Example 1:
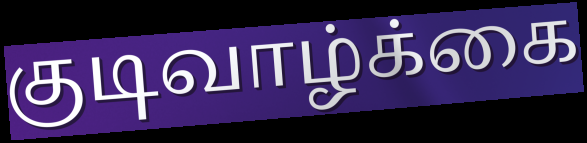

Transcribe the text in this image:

குடிவாழ்க்கை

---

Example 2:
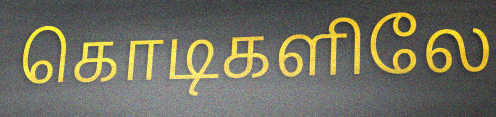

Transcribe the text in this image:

கொடிகளிலே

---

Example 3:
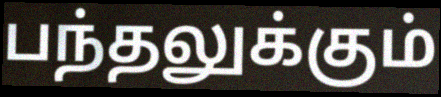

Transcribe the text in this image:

பந்தலுக்கும்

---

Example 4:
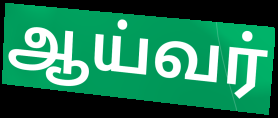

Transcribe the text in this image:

ஆய்வர்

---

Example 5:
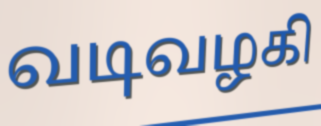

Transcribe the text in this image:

வடிவழகி